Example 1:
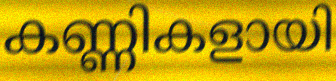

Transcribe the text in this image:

കണ്ണികളായി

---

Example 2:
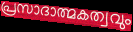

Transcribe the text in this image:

പ്രസാദാത്മകത്വവും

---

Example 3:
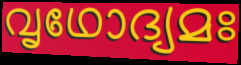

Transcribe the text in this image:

വൃഥോദ്യമഃ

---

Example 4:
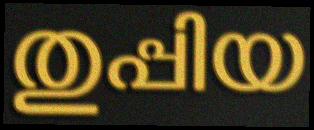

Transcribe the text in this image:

തുപ്പിയ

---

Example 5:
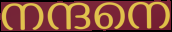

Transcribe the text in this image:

നന്ദനെ